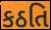
કઠતિ